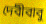
দেবীবাবু